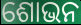
ଶୋଭନ